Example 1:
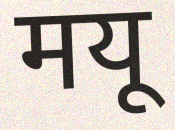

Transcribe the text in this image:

मयू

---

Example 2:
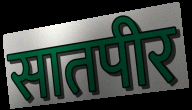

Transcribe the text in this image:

सातपीर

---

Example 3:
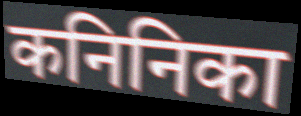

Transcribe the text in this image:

कनिनिका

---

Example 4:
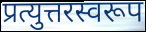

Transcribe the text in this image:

प्रत्युत्तरस्वरूप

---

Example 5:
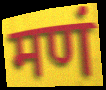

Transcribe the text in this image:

मणं